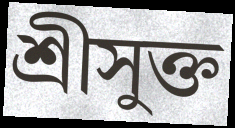
শ্রীসুক্ত